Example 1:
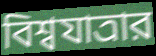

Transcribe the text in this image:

বিশ্বযাত্রার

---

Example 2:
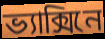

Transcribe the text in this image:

ভ্যাক্সিনে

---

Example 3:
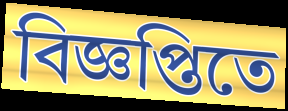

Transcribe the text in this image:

বিজ্ঞপ্তিতে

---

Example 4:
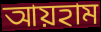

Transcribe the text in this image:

আয়হাম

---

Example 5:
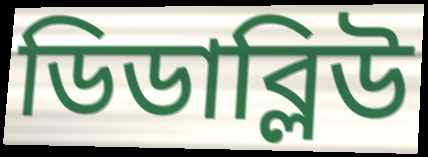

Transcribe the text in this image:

ডিডাব্লিউ